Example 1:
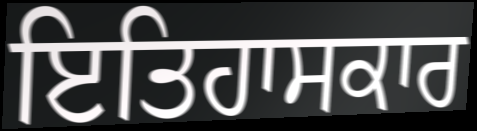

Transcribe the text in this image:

ਇਤਿਹਾਸਕਾਰ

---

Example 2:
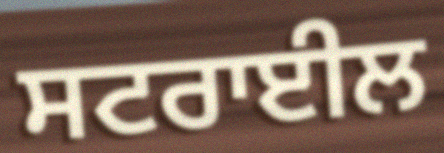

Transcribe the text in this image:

ਸਟਰਾਈਲ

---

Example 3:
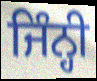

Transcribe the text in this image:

ਜਿੰਨ੍ਹੀ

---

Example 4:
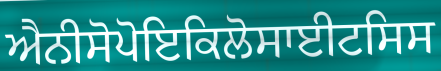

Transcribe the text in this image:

ਐਨੀਸੋਪੋਇਕਿਲੋਸਾਈਟਸਿਸ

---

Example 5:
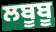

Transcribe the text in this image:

ਲਬੂਬੂ